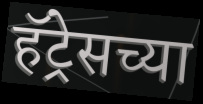
हॅट्रेसच्या